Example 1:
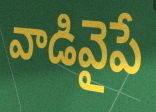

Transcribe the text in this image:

వాడివైపే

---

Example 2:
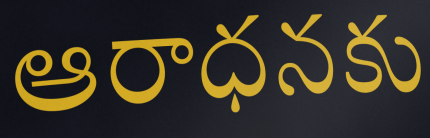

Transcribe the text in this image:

ఆరాధనకు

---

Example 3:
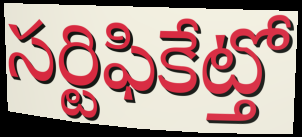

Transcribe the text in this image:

సర్టిఫికేట్తో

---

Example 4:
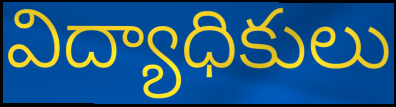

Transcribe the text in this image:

విద్యాధికులు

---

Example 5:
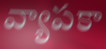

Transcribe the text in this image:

వ్యాపకా